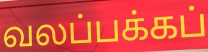
வலப்பக்கப்